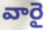
వారై